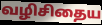
வழிசிதைய